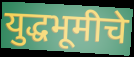
युद्धभूमीचे